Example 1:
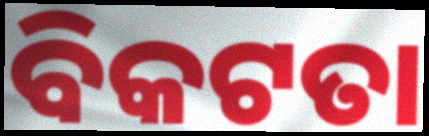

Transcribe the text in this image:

ବିକଟତା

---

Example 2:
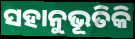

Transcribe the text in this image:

ସହାନୁଭୂତିକି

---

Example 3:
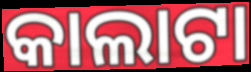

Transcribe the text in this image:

କାଲାଟା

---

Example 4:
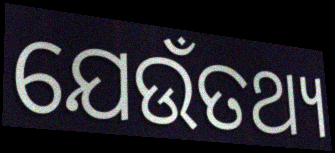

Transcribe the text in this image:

ଯେଉଁତଥ୍ୟ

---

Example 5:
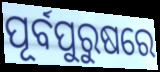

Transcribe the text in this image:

ପୂର୍ବପୁରୁଷରେ